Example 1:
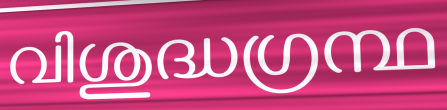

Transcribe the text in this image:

വിശുദ്ധഗ്രന്ഥ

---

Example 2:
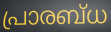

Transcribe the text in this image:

പ്രാരബ്ധ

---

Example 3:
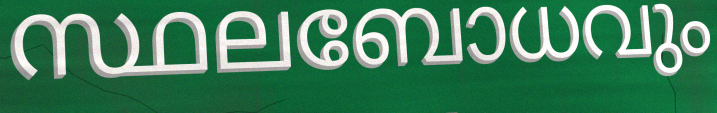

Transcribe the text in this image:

സ്ഥലബോധവും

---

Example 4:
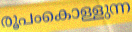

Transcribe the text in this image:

രൂപംകൊള്ളുന്ന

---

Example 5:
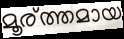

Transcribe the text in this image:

മൂര്ത്തമായ